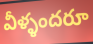
వీళ్ళందరూ